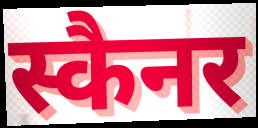
स्कैनर